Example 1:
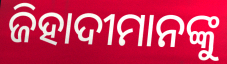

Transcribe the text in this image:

ଜିହାଦୀମାନଙ୍କୁ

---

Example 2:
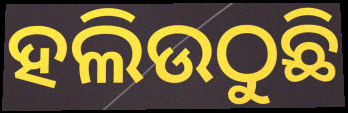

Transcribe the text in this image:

ହଲିଉଠୁଛି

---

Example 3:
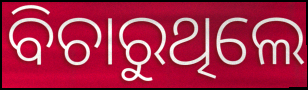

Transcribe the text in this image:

ବିଚାରୁଥିଲେ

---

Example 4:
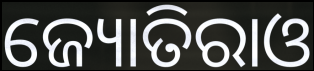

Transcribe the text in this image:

ଜ୍ୟୋତିରାଓ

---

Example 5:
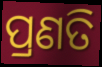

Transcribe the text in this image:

ପ୍ରଣତି